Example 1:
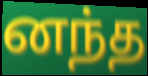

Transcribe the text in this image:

னந்த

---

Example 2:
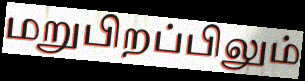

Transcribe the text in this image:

மறுபிறப்பிலும்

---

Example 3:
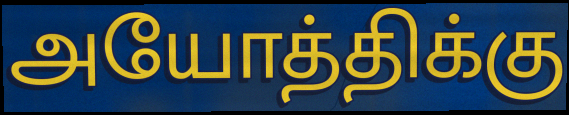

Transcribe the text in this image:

அயோத்திக்கு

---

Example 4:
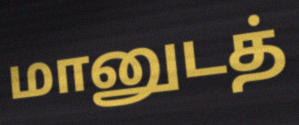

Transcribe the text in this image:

மானுடத்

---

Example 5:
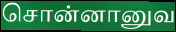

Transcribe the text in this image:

சொன்னானுவ